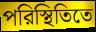
পরিস্থিতিতে